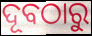
ଦୂବଠାରୁ